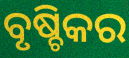
ବୃଷ୍ଚିକର